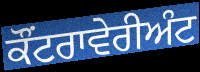
ਕੌਂਟਰਾਵੇਰੀਅੰਟ